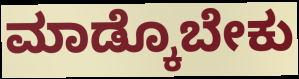
ಮಾಡ್ಕೊಬೇಕು